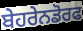
ਬੇਹਰੇਨਡੋਰਫ